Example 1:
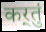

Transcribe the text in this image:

कर्तुं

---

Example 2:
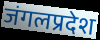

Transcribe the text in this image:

जंगलप्रदेश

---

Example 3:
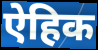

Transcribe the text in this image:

ऐहिक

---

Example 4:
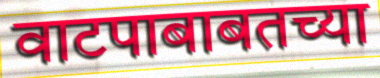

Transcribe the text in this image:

वाटपाबाबतच्या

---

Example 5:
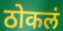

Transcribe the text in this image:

ठोकलं